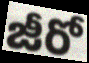
జీరో